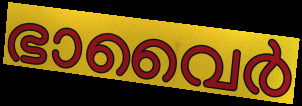
ഭാവൈർ